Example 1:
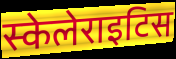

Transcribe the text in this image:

स्केलेराइटिस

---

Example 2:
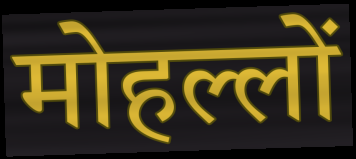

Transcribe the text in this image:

मोहल्लों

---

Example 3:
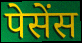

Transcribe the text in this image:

पेसेंस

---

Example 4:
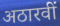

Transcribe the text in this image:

अठारवीं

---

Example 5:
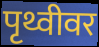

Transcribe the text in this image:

पृथ्वीवर